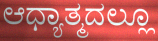
ಆಧ್ಯಾತ್ಮದಲ್ಲೂ